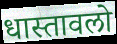
धास्तावलो